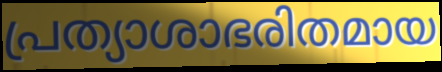
പ്രത്യാശാഭരിതമായ